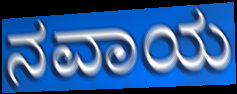
ನವಾಯ